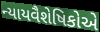
ન્યાયવૈશેષિકોએ